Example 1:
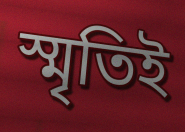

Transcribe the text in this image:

স্মৃতিই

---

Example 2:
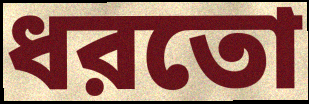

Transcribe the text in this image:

ধরতো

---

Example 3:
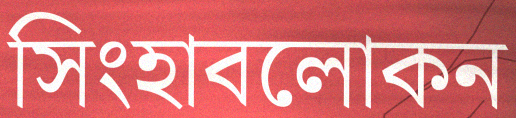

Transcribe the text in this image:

সিংহাবলোকন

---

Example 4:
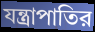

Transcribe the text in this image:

যন্ত্রাপাতির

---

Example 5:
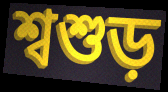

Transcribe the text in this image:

শ্বশুড়